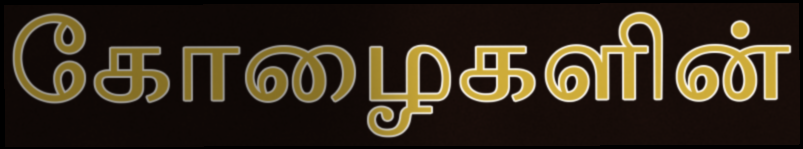
கோழைகளின்